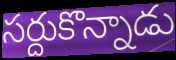
సర్దుకొన్నాడు